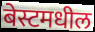
बेस्टमधील